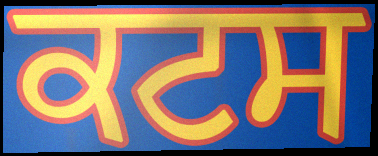
ਕਟਸ